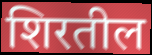
शिरतील